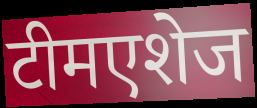
टीमएशेज